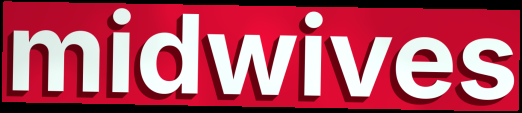
midwives